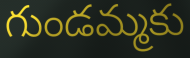
గుండమ్మకు